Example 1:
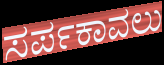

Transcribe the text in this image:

ಸರ್ಪಕಾವಲು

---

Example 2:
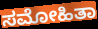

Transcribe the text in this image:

ಸಮೋಹಿತಾ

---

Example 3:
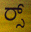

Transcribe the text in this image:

ರ್‍ಸ್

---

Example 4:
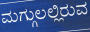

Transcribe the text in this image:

ಮಗ್ಗುಲಲ್ಲಿರುವ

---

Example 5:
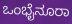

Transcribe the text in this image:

ಒಂಭೈನೂರಾ